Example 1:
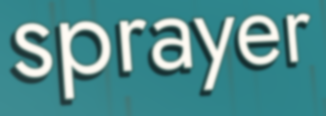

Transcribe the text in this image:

sprayer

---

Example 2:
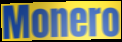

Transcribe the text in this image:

Monero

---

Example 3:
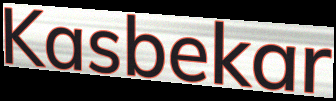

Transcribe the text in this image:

Kasbekar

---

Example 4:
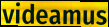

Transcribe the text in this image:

videamus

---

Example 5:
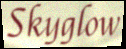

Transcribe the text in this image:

Skyglow